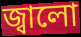
জ্বালো